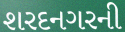
શરદનગરની